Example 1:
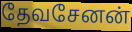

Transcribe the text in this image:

தேவசேனன்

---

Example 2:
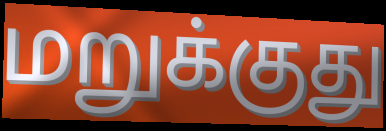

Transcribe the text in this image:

மறுக்குது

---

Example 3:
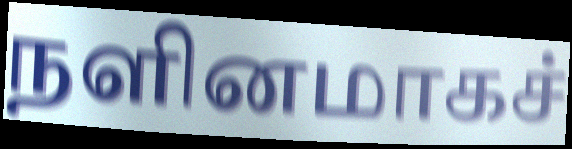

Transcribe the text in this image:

நளினமாகச்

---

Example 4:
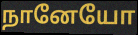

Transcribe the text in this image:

நானேயோ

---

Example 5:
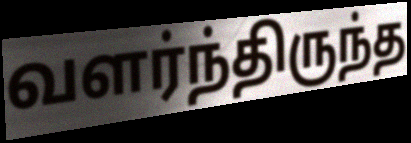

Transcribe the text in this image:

வளர்ந்திருந்த